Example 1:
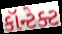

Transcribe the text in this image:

કૉન્ટેક્ટ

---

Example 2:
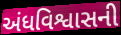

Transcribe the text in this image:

અંધવિશ્વાસની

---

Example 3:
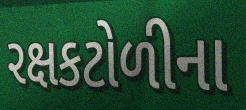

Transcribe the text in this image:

રક્ષકટોળીના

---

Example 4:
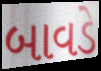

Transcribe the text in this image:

બાવડે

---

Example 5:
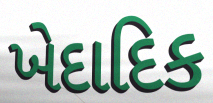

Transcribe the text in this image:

ખેદાદિક